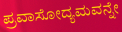
ಪ್ರವಾಸೋದ್ಯಮವನ್ನೇ